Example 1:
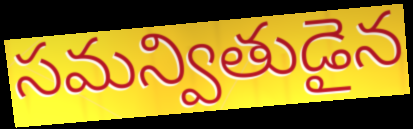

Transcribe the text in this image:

సమన్వితుడైన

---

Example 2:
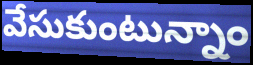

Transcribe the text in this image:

వేసుకుంటున్నాం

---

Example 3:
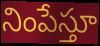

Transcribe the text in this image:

నింపేస్తూ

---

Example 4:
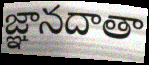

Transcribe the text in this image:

జ్ఞానదాతా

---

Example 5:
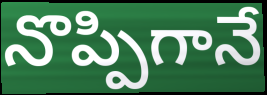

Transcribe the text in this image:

నొప్పిగానే